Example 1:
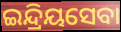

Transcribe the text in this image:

ଇନ୍ଦ୍ରିୟସେବା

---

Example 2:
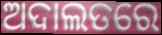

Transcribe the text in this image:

ଅଦାଲତରେ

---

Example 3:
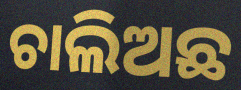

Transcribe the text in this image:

ଚାଲିଅଛ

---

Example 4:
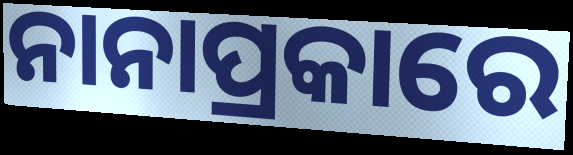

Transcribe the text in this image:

ନାନାପ୍ରକାରେ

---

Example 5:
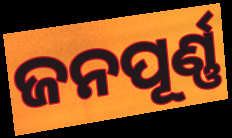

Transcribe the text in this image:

ଜନପୂର୍ଣ୍ଣ